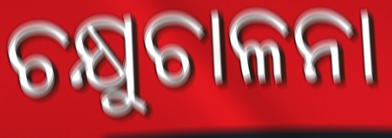
ଚକ୍ଷୁଚାଳନା